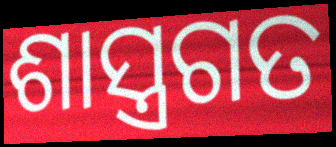
ଶାସ୍ତ୍ରଗତ